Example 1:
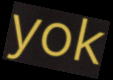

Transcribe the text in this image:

yok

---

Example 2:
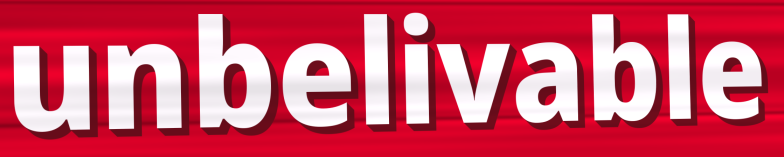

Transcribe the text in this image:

unbelivable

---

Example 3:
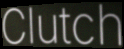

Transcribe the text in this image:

Clutch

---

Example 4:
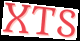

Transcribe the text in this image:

XTS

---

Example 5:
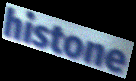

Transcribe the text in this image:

histone